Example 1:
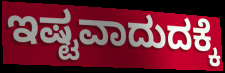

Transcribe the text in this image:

ಇಷ್ಟವಾದುದಕ್ಕೆ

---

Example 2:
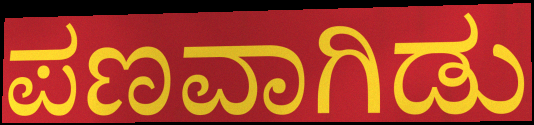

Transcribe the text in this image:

ಪಣವಾಗಿಡು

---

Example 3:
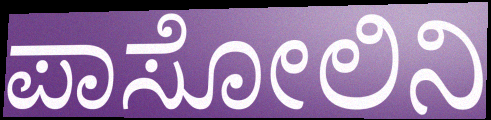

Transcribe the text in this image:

ಪಾಸೋಲಿನಿ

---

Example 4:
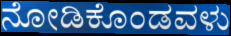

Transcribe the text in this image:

ನೋಡಿಕೊಂಡವಳು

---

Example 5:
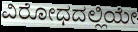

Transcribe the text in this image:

ವಿರೋಧದಲ್ಲಿಯೇ